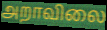
அறாவிலை